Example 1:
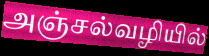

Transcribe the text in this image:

அஞ்சல்வழியில்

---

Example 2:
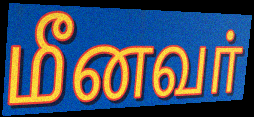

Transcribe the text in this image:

மீனவர்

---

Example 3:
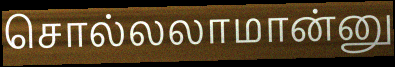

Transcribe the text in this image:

சொல்லலாமான்னு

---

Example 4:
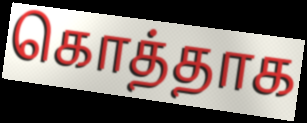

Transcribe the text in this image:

கொத்தாக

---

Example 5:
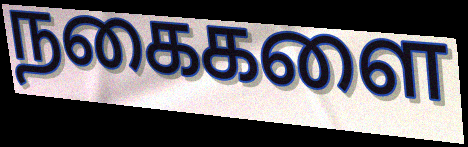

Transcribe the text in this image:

நகைகளை